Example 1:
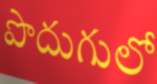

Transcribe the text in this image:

పొదుగులో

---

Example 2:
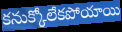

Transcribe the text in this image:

కనుక్కోలేకపోయాయి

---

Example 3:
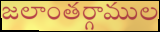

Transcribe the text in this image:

జలాంతర్గాముల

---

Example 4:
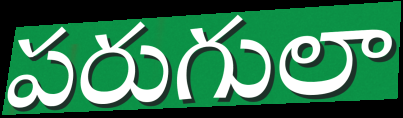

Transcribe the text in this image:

పరుగులా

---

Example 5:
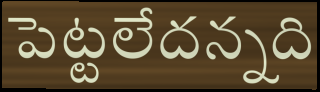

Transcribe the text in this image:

పెట్టలేదన్నది